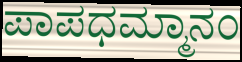
ಪಾಪಧಮ್ಮಾನಂ